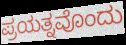
ಪ್ರಯತ್ನವೊಂದು